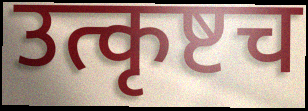
उत्कृष्टच